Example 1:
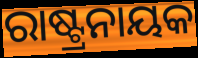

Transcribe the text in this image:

ରାଷ୍ଟ୍ରନାୟକ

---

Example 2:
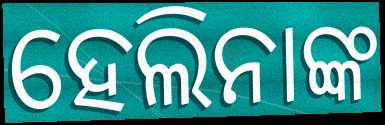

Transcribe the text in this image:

ହେଲିନାଙ୍କ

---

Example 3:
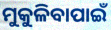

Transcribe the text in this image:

ମୁକୁଳିବାପାଇଁ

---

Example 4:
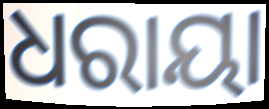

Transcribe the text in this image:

ଧରାୟା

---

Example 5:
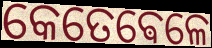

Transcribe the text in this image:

କେତେଵେଳେ